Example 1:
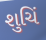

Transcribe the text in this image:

શુચિં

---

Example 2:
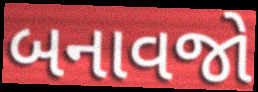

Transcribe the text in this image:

બનાવજો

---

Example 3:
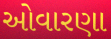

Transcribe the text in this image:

ઓવારણા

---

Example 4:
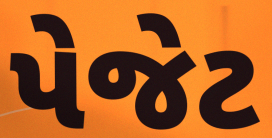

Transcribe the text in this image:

પેજેટ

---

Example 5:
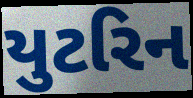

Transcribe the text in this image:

યુટરિન